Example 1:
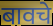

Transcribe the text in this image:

बावचे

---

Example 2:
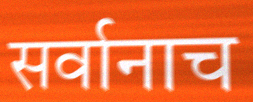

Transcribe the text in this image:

सर्वानाच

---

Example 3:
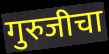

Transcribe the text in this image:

गुरुजीचा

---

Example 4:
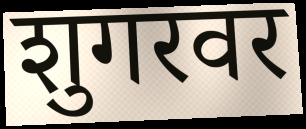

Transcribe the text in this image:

शुगरवर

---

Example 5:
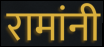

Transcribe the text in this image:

रामांनी